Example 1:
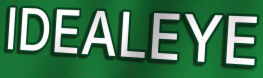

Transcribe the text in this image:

IDEALEYE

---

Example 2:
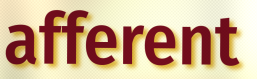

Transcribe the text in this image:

afferent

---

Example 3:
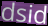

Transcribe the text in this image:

dsid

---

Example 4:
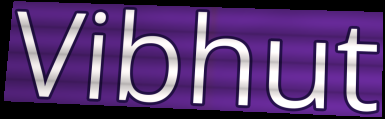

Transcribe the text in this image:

Vibhut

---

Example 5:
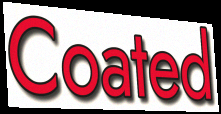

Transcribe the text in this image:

Coated